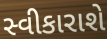
સ્વીકારાશે